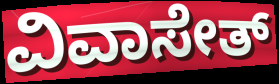
ವಿವಾಸೇತ್